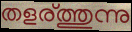
തളര്ത്തുന്നു